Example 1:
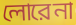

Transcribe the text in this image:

লোরেনা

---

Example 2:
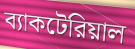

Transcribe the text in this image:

ব্যাকটেরিয়াল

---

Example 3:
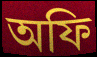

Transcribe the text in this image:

অফি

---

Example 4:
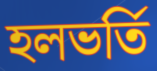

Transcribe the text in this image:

হলভর্তি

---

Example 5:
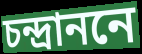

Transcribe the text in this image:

চন্দ্রাননে